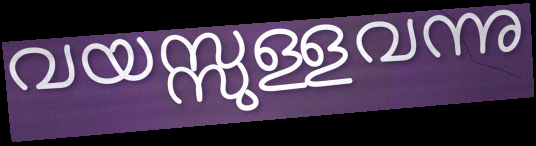
വയസ്സുള്ളവന്നു